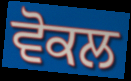
ਵੋਕਲ